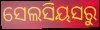
ସେଲସିୟସରୁ